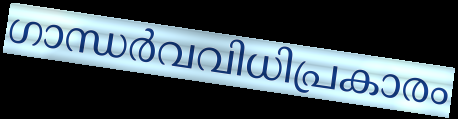
ഗാന്ധർവവിധിപ്രകാരം